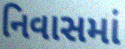
નિવાસમાં